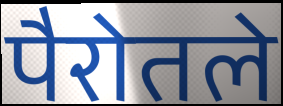
पैरोतले